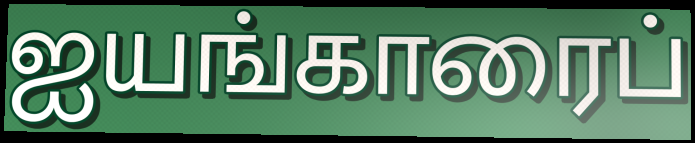
ஐயங்காரைப்